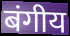
बंगीय